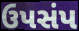
ઉપસંપ